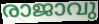
രാജാവു